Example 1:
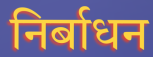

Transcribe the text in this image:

निर्बाधन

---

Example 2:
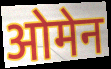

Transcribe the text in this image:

ओमेन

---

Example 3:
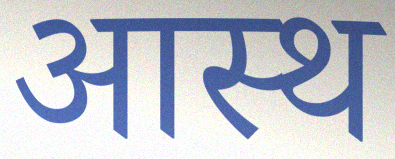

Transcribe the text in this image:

आस्थ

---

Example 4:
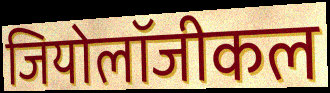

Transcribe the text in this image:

जियोलॉजीकल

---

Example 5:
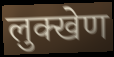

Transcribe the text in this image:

लुक्खेण